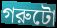
গরুটো